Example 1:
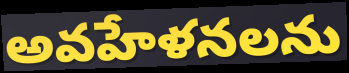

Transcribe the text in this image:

అవహేళనలను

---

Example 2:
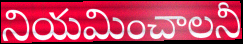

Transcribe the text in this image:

నియమించాలనీ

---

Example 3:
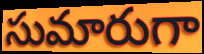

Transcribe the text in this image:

సుమారుగా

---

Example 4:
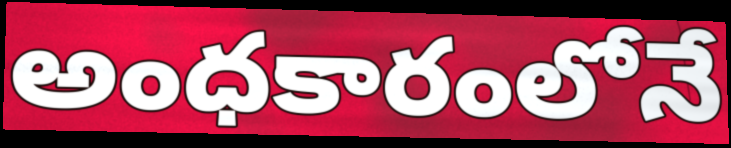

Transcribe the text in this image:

అంధకారంలోనే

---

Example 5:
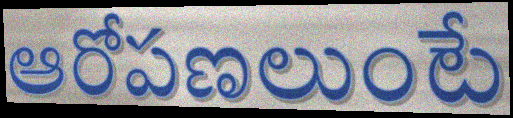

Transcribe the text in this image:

ఆరోపణలుంటే